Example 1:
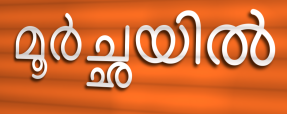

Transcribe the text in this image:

മൂർച്ഛയിൽ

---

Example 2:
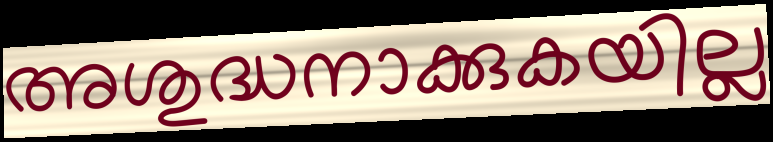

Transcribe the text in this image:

അശുദ്ധനാക്കുകയില്ല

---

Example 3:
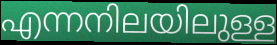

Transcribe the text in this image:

എന്നനിലയിലുള്ള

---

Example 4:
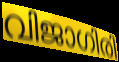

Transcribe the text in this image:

വിജാഗിരി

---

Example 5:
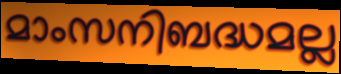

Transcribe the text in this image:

മാംസനിബദ്ധമല്ല